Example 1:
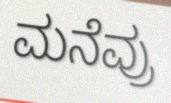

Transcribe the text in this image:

ಮನೆವ್ರು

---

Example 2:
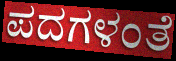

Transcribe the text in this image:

ಪದಗಳಂತೆ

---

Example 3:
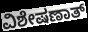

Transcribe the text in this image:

ವಿಶೇಷಣಾತ್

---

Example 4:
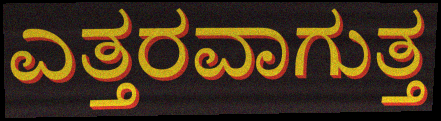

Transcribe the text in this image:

ಎತ್ತರವಾಗುತ್ತ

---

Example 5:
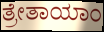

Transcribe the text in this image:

ತ್ರೇತಾಯಾಂ